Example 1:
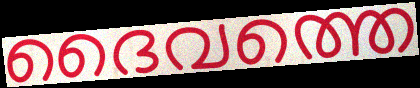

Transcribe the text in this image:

ദൈവത്തെ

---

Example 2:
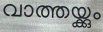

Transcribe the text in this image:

വാത്തയ്ക്കും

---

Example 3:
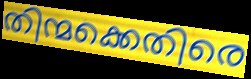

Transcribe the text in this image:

തിന്മക്കെതിരെ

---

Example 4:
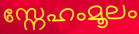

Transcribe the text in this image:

സ്നേഹംമൂലം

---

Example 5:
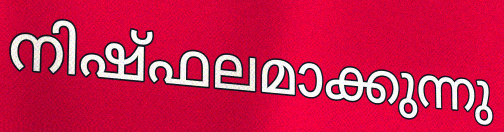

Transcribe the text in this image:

നിഷ്ഫലമാക്കുന്നു